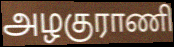
அழகுராணி